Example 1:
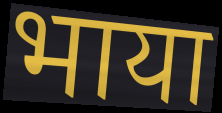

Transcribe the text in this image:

भाया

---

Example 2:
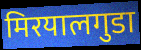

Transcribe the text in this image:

मिरयालगुडा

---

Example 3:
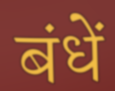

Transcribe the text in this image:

बंधें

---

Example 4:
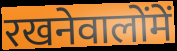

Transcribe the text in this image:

रखनेवालोंमें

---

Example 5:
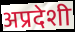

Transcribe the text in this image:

अप्रदेशी